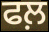
ਫਲ਼